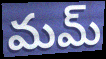
మమ్